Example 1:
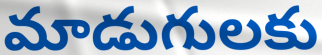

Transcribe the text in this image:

మాడుగులకు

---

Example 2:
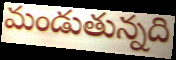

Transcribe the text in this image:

మండుతున్నది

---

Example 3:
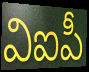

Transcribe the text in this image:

విఐపీ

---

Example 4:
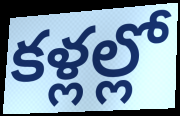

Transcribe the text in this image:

కళ్లల్లో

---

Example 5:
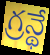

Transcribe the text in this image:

గ్రన్థే